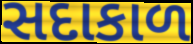
સદાકાળ